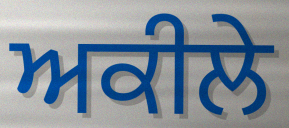
ਅਕੀਲੇ